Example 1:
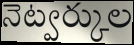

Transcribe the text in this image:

నెట్వర్కుల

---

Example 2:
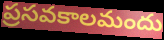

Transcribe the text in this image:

ప్రసవకాలమందు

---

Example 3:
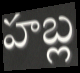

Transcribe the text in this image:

హబ్ల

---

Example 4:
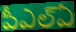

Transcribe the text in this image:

పీఎల్ఏ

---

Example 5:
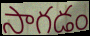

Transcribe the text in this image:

సాగడం